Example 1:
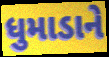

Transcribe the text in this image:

ધુમાડાને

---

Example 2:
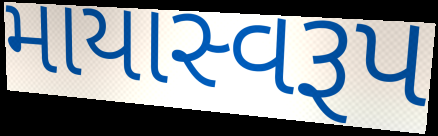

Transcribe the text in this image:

માયાસ્વરૂપ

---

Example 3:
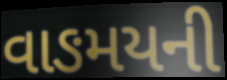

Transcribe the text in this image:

વાઙમયની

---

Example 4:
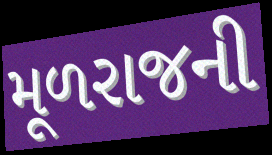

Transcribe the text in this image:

મૂળરાજની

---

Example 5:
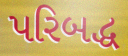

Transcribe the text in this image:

પરિબદ્ધ